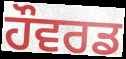
ਹੌਵਰਡ